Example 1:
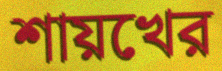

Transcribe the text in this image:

শায়খের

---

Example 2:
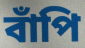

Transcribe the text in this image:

বাঁপি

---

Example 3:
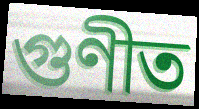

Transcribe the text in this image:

গুণীত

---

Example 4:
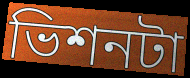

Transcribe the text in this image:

ভিশনটা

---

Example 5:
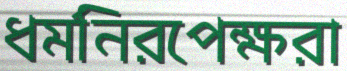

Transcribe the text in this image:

ধর্মনিরপেক্ষরা